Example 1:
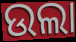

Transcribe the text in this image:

ଉଲା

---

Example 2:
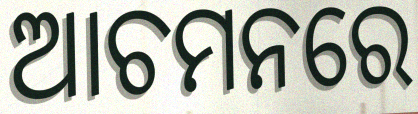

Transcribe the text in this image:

ଆଚମନରେ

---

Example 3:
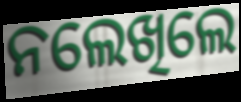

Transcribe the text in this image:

ନଲେଖିଲେ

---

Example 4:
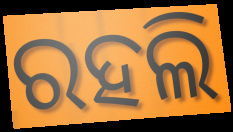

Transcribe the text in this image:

ରହଲି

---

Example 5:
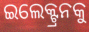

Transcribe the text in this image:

ଇଲେକ୍ଟ୍ରନକୁ